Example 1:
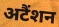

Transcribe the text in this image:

अटैंशन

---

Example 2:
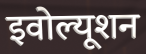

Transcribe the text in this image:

इवोल्यूशन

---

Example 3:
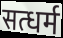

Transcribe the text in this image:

सत्धर्म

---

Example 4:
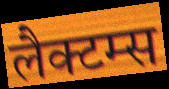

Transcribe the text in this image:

लैक्टम्स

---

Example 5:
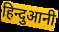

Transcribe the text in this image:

हिन्दुआनी